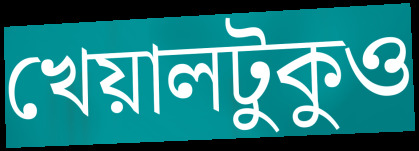
খেয়ালটুকুও